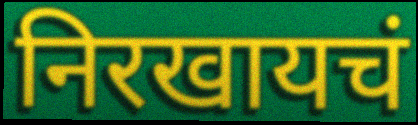
निरखायचं